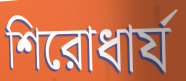
শিরোধার্য